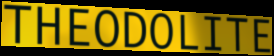
THEODOLITE